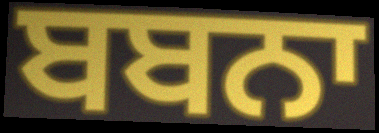
ਬਬਨਾ